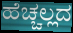
ಹೆಚ್ಚಲ್ಲದ